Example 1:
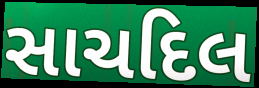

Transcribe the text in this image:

સાચદિલ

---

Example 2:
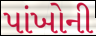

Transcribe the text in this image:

પાંખોની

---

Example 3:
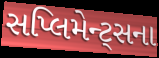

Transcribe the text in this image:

સપ્લિમેન્ટ્સના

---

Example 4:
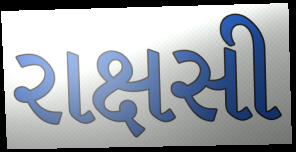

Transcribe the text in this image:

રાક્ષસી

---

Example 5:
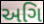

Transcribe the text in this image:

અગિ